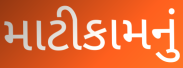
માટીકામનું